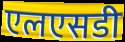
एलएसडी